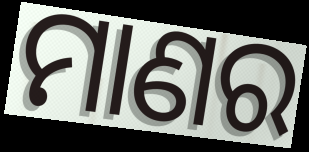
ମାଣର